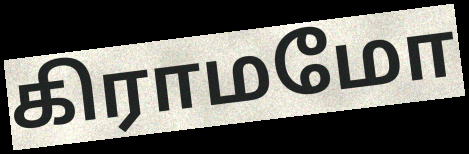
கிராமமோ